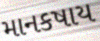
માનકષાય